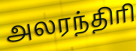
அலரந்திரி